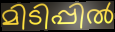
മിടിപ്പിൽ